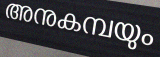
അനുകമ്പയും